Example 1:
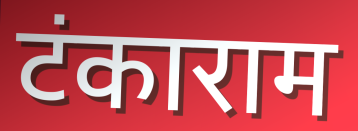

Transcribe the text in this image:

टंकाराम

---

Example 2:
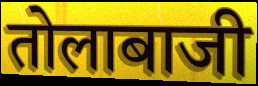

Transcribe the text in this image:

तोलाबाजी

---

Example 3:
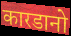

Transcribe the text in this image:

कारडानो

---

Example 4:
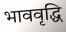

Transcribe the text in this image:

भाववृद्धि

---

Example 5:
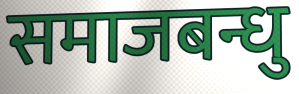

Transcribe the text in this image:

समाजबन्धु